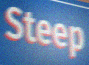
Steep